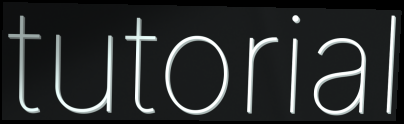
tutorial